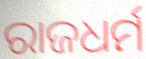
ରାଜଧର୍ମ